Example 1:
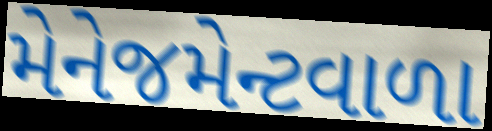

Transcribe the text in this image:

મેનેજમેન્ટવાળા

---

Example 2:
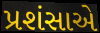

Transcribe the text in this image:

પ્રશંસાએ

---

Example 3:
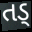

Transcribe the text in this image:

તડ્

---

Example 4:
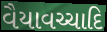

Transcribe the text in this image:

વૈયાવચ્ચાદિ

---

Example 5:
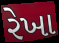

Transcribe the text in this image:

રેખા